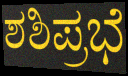
ಶಶಿಪ್ರಭೆ